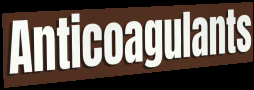
Anticoagulants